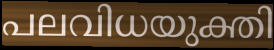
പലവിധയുക്തി